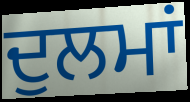
ਦੁਲਮਾਂ